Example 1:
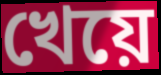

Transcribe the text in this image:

খেয়ে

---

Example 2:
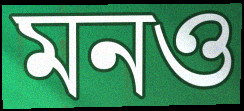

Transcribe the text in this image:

মনও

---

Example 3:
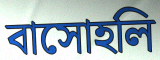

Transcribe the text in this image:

বাসোহলি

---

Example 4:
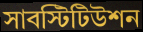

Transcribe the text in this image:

সাবস্টিটিউশন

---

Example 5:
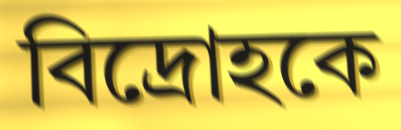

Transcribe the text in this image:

বিদ্রোহকে